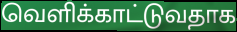
வெளிக்காட்டுவதாக